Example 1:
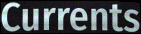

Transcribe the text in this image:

Currents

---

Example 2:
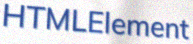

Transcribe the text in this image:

HTMLElement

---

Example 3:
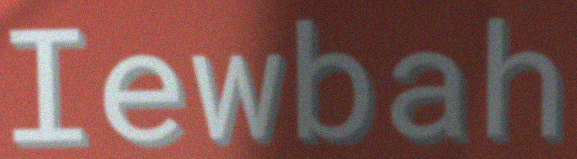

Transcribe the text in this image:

Iewbah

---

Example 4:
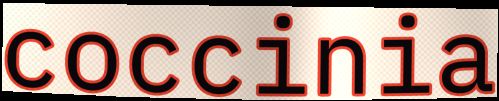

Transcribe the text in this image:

coccinia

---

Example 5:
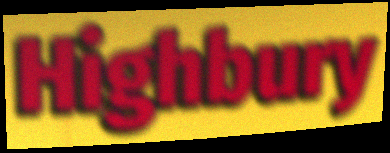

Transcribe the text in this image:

Highbury